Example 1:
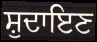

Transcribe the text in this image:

ਸ਼ੁਦਾਇਣ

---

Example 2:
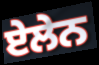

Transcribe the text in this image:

ਏਲੇਨ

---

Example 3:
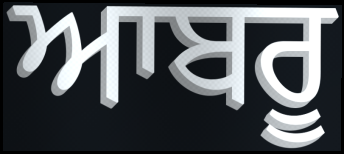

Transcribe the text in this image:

ਆਬਰੂ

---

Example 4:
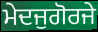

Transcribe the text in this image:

ਮੇਦਜੁਗੋਰਜੇ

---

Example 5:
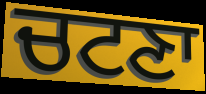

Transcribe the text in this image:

ਚਟਣਾ